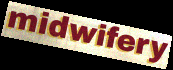
midwifery